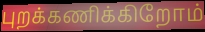
புறக்கணிக்கிறோம்